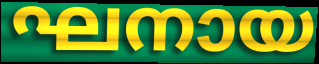
ഘനായ